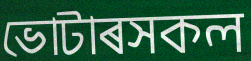
ভোটাৰসকল